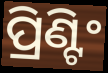
ପ୍ରିଣ୍ଟିଂ